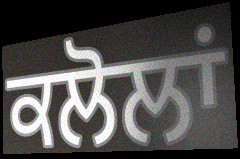
ਕਲੋਲਾਂ